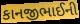
કાનજીભાઈની